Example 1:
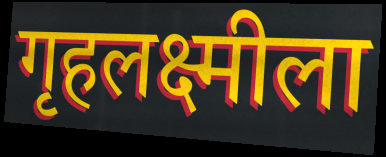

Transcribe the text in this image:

गृहलक्ष्मीला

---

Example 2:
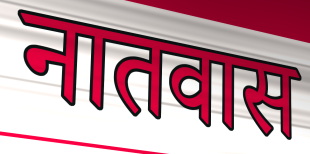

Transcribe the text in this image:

नातवास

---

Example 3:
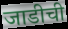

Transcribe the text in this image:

जाडीची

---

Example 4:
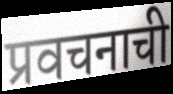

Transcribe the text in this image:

प्रवचनाची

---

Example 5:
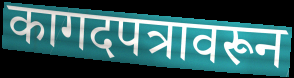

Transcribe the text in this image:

कागदपत्रावरून